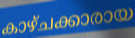
കാഴ്ചക്കാരായ